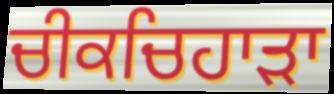
ਚੀਕਚਿਹਾੜਾ